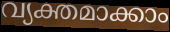
വ്യക്തമാക്കാം